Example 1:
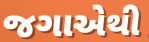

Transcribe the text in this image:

જગાએથી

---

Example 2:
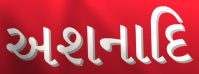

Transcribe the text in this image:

અશનાદિ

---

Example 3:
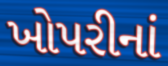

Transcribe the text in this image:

ખોપરીનાં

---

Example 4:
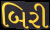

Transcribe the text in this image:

બિરી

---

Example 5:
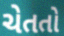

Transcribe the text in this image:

ચેતતો